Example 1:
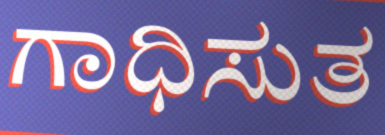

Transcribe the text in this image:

ಗಾಧಿಸುತ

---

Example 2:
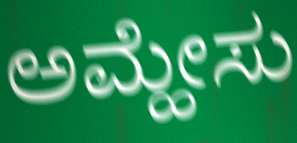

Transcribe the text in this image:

ಅಮ್ಹೇಸು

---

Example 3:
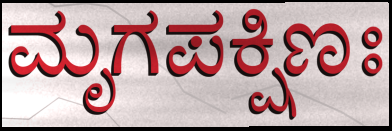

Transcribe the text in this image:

ಮೃಗಪಕ್ಷಿಣಃ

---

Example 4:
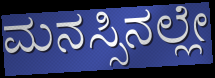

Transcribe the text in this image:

ಮನಸ್ಸಿನಲ್ಲೇ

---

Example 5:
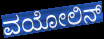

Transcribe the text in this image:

ವಯೋಲಿನ್